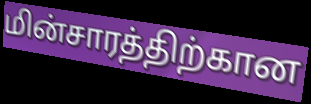
மின்சாரத்திற்கான